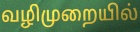
வழிமுறையில்